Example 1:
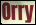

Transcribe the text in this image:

Orry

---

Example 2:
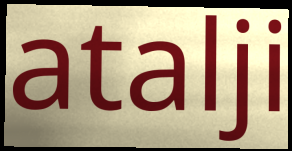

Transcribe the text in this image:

atalji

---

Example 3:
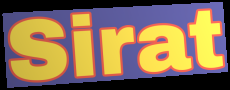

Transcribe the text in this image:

Sirat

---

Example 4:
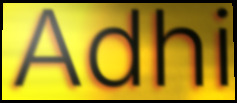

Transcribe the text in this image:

Adhi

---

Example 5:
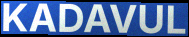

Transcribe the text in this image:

KADAVUL